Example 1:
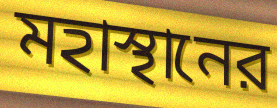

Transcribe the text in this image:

মহাস্থানের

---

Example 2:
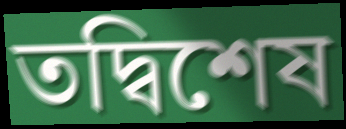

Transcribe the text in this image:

তদ্বিশেষ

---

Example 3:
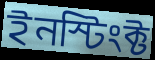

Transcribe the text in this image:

ইনস্টিংক্ট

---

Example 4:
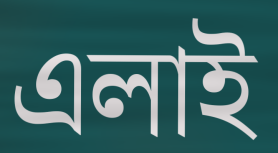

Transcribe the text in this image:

এলাই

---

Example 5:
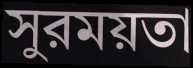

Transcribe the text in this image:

সুরময়তা